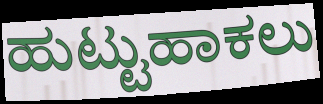
ಹುಟ್ಟುಹಾಕಲು